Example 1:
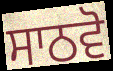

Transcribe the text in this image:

ਸਾਠਵੋ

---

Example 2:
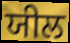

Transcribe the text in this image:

ਯੀਲ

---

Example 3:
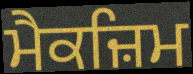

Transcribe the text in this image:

ਮੈਕਜ਼ਿਮ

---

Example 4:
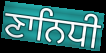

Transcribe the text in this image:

ਣਾਨਿਧੀ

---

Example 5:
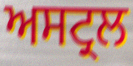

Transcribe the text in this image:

ਅਸਟ੍ਰਲ